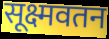
सूक्ष्मवतन